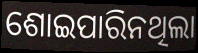
ଶୋଇପାରିନଥିଲା